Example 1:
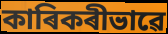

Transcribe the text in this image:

কাৰিকৰীভাৱে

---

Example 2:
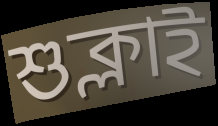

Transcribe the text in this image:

শুক্লাই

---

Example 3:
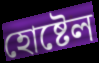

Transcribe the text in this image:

হোষ্টেল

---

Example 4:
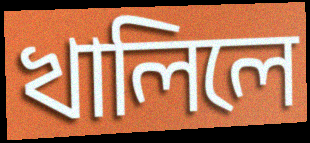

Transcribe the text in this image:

খালিলে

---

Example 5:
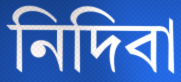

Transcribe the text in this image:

নিদিবা